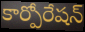
కార్పోరేషన్